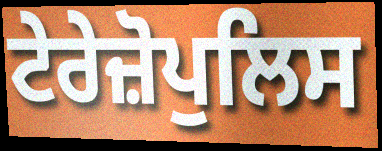
ਟੇਰੇਜ਼ੋਪੁਲਿਸ